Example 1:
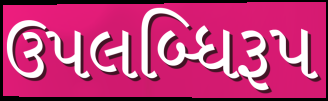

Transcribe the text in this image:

ઉપલબ્ધિરૂપ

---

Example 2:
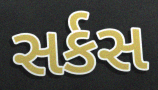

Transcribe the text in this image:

સર્કસ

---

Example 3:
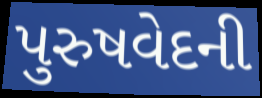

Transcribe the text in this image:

પુરુષવેદની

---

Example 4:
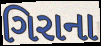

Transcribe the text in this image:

ગિરાના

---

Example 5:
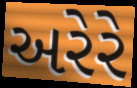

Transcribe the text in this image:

અરેરે